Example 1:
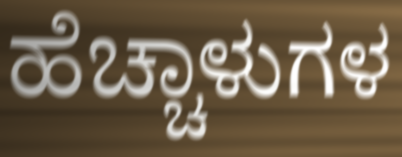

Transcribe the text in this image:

ಹೆಚ್ಚಾಳುಗಳ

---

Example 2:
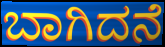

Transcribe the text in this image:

ಬಾಗಿದನೆ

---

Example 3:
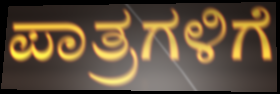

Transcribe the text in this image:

ಪಾತ್ರಗಳಿಗೆ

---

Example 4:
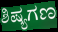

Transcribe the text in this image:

ಶಿಷ್ಯಗಣ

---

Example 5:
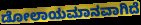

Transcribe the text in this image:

ಡೋಲಾಯಮಾನವಾಗಿದೆ